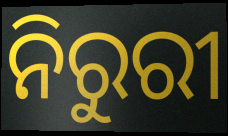
ନିରୁରୀ